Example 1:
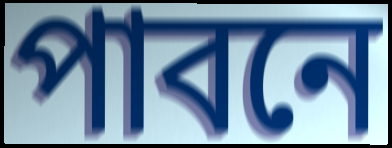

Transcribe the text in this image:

পাবনে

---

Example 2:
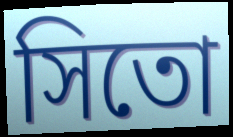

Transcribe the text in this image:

সিতো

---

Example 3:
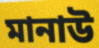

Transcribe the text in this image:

মানাউ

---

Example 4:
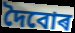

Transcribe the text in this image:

দৈবোৰ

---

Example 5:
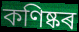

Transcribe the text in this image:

কণিষ্কৰ